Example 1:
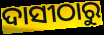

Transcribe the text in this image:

ଦାସୀଠାରୁ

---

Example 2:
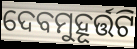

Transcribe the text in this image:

ଦେବମୁହୂର୍ତ୍ତଟି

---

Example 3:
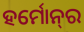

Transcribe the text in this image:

ହର୍ମୋନ୍‌ର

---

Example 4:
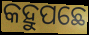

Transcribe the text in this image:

କହୁପଛେ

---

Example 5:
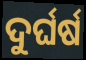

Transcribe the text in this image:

ଦୁର୍ଘର୍ଷ